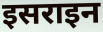
इसराइन